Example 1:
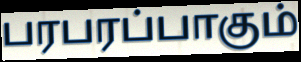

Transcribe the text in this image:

பரபரப்பாகும்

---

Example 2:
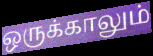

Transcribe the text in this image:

ஒருக்காலும்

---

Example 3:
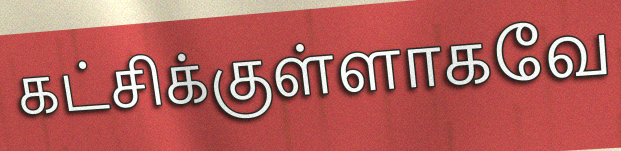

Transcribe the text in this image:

கட்சிக்குள்ளாகவே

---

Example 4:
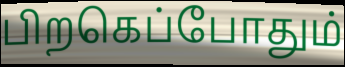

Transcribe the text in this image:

பிறகெப்போதும்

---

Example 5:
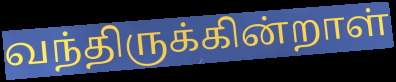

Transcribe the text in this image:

வந்திருக்கின்றாள்